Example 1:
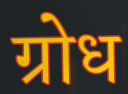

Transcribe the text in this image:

ग्रोध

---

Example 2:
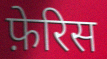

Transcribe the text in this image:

फ़ेरिस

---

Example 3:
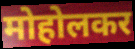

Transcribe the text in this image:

मोहोलकर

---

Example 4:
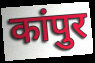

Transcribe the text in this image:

कांपुर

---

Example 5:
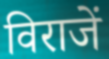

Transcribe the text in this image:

विराजें